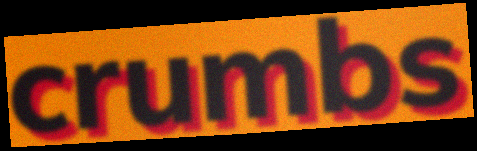
crumbs